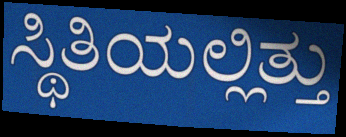
ಸ್ಥಿತಿಯಲ್ಲಿತ್ತು